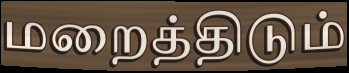
மறைத்திடும்